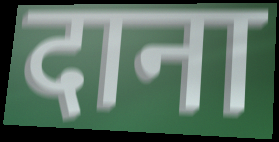
दाना